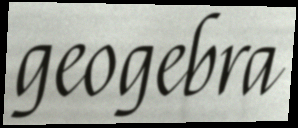
geogebra